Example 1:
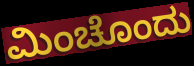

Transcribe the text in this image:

ಮಿಂಚೊಂದು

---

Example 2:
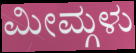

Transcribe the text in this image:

ಮೀಮ್ಗಳು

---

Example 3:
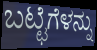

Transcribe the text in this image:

ಬಟ್ಟೆಗೆಳನ್ನು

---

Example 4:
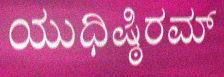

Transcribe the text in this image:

ಯುಧಿಷ್ಠಿರಮ್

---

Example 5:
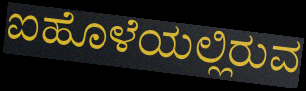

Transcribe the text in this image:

ಐಹೊಳೆಯಲ್ಲಿರುವ